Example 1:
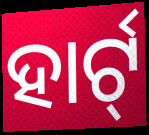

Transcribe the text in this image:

ହାର୍ଟ୍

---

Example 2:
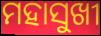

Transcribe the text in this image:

ମହାସୁଖୀ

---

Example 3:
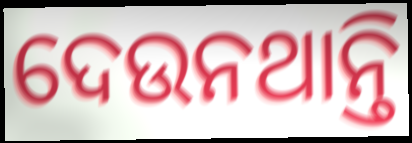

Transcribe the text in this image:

ଦେଉନଥାନ୍ତି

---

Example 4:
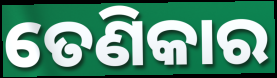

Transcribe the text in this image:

ତେଣିକାର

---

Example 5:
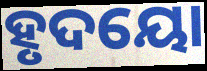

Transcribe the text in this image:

ହୃଦୟୋ